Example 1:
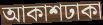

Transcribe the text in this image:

আকাশঢাকা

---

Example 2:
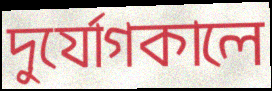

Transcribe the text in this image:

দুর্যোগকালে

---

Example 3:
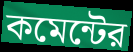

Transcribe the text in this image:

কমেন্টের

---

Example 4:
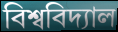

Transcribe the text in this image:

বিশ্ববিদ্যাল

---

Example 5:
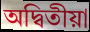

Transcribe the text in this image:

অদ্বিতীয়া